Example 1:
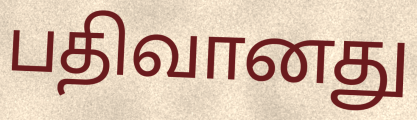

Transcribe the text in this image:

பதிவானது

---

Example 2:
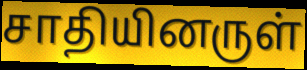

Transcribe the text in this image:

சாதியினருள்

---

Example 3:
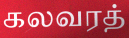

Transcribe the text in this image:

கலவரத்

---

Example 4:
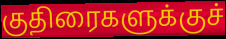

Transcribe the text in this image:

குதிரைகளுக்குச்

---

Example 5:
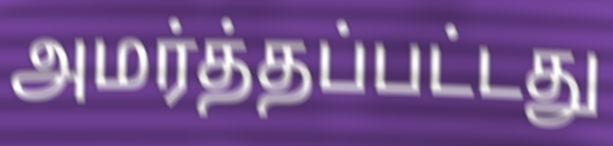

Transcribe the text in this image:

அமர்த்தப்பட்டது